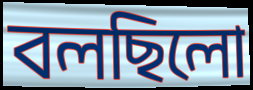
বলছিলো